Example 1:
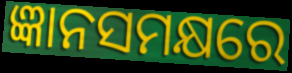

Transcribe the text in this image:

ଜ୍ଞାନସମକ୍ଷରେ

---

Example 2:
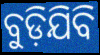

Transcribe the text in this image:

ବୁଡ଼ିଯିବି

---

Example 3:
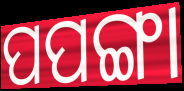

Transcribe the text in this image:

ପପଙ୍ଗା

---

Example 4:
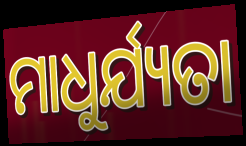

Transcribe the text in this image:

ମାଧୁର୍ଯ୍ୟତା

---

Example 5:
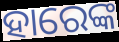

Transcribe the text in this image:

ହାରେଙ୍କ